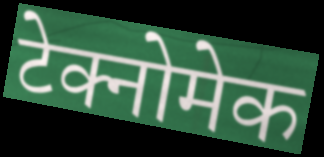
टेक्नोमेक